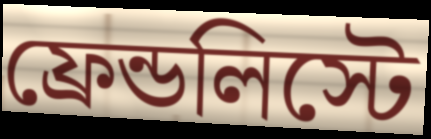
ফ্রেন্ডলিস্টে